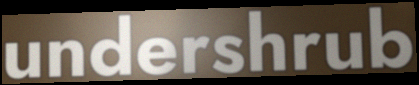
undershrub